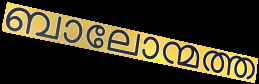
ബാലോന്മത്ത